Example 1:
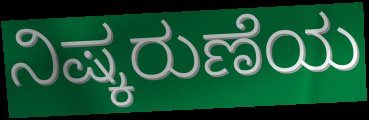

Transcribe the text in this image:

ನಿಷ್ಕರುಣೆಯ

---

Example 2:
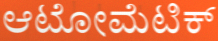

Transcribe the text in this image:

ಆಟೋಮೆಟಿಕ್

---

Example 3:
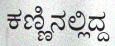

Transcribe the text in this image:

ಕಣ್ಣಿನಲ್ಲಿದ್ದ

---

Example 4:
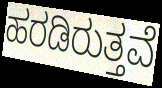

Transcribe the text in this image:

ಹರಡಿರುತ್ತವೆ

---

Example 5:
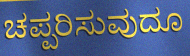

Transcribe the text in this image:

ಚಪ್ಪರಿಸುವುದೂ